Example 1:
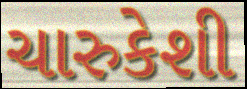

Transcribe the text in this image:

ચારુકેશી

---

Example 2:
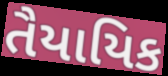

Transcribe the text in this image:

તૈયાયિક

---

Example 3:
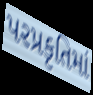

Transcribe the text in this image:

પરપ્રકૃતિમાં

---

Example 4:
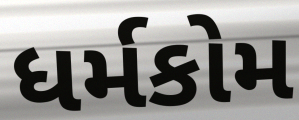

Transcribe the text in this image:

ધર્મકોમ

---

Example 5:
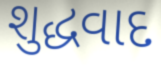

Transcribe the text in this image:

શુદ્ધવાદ